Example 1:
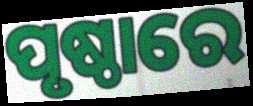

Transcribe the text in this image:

ପୃଷ୍ଠାରେ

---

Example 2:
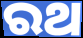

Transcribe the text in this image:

ରଥ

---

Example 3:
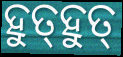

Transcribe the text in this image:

ହୁତ୍‌ହୁତ୍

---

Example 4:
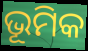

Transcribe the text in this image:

ଭୂମିକ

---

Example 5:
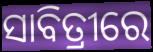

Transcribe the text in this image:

ସାବିତ୍ରୀରେ